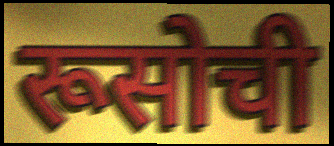
रूसोची